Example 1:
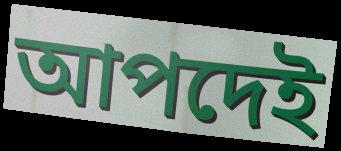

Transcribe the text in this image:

আপদেই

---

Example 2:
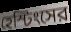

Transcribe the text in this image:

হেস্টিংসের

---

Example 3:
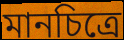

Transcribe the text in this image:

মানচিত্রে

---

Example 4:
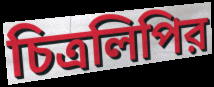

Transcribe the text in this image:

চিত্রলিপির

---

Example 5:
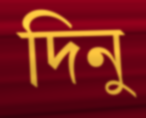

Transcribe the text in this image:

দিনু